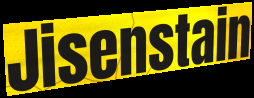
Jisenstain